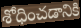
శోధించడానికి